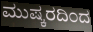
ಮುಷ್ಕರದಿಂದ